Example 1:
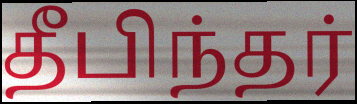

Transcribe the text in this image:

தீபிந்தர்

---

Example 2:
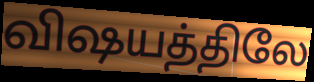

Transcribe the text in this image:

விஷயத்திலே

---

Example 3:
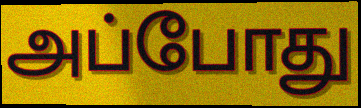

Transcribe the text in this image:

அப்போது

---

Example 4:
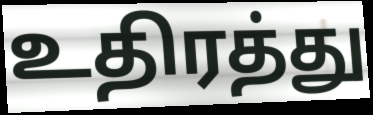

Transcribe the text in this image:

உதிரத்து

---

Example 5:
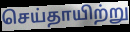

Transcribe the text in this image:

செய்தாயிற்று